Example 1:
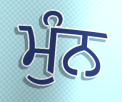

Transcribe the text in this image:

ਮੁੰਨ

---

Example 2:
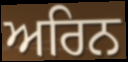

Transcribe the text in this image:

ਅਰਿਨ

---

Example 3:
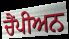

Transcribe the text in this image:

ਚੈਂਪੀਅਨ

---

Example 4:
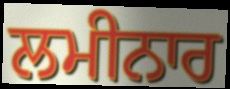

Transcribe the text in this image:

ਲਮੀਨਾਰ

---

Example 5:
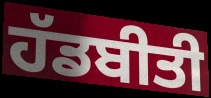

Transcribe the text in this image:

ਹੱਡਬੀਤੀ